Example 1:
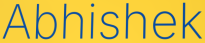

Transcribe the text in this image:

Abhishek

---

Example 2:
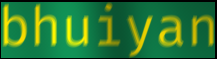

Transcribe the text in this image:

bhuiyan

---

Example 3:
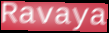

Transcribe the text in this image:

Ravaya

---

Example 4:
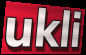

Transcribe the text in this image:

ukli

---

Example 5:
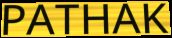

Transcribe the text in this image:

PATHAK